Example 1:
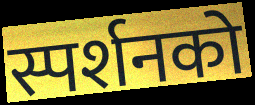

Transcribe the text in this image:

स्पर्शनको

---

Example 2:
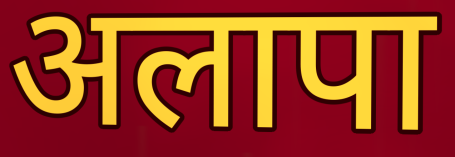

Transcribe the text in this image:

अलापा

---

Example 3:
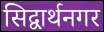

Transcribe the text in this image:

सिद्वार्थनगर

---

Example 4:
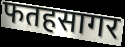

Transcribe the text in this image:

फतहसागर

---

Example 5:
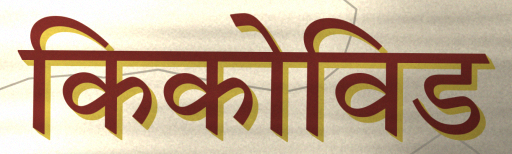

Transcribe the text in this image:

किकोविड